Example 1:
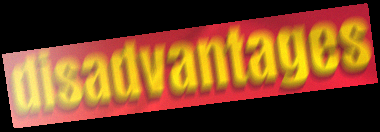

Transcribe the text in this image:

disadvantages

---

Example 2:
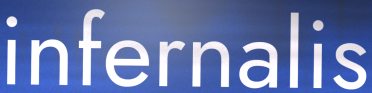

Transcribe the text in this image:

infernalis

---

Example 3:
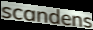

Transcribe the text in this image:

scandens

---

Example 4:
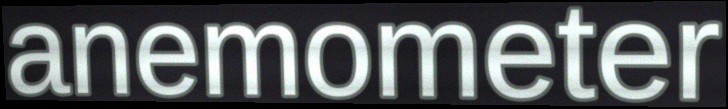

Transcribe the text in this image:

anemometer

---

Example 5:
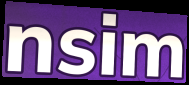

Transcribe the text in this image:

nsim